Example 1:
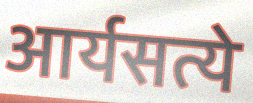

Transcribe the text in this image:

आर्यसत्ये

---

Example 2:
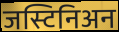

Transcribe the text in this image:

जस्टिनिअन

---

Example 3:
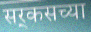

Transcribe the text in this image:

सर्कसच्या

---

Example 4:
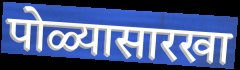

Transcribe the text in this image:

पोळ्यासारखा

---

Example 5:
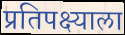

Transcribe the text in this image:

प्रतिपक्ष्याला